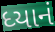
ધ્યાનં